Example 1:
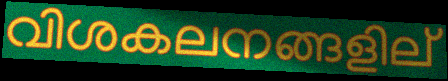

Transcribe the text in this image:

വിശകലനങ്ങളില്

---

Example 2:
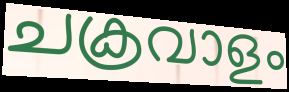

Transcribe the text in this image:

ചക്രവാളം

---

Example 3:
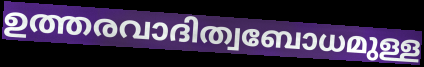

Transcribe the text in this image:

ഉത്തരവാദിത്വബോധമുള്ള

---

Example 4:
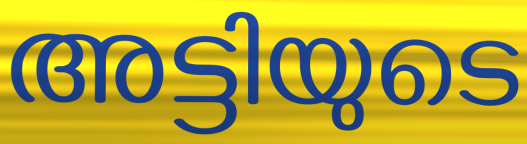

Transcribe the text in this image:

അട്ടിയുടെ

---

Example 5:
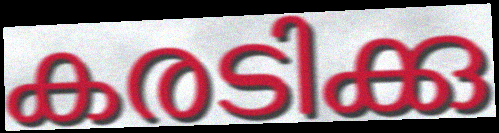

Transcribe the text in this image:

കരടിക്കു